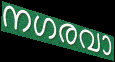
നഗരവാ